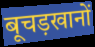
बूचड़खानों